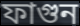
ফাগুন